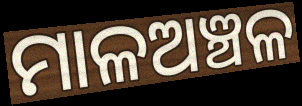
ମାଳଅଞ୍ଚଳ